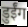
डुईंग